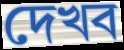
দেখব